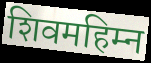
शिवमहिम्न